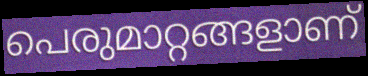
പെരുമാറ്റങ്ങളാണ്